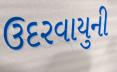
ઉદરવાયુની